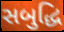
સબુદ્ધિ